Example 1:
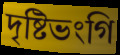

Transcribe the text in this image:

দৃষ্টিভংগি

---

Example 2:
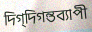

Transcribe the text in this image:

দিগ্‌দিগন্তব্যাপী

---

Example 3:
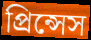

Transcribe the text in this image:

প্রিন্সেস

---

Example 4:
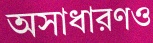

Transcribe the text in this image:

অসাধারণও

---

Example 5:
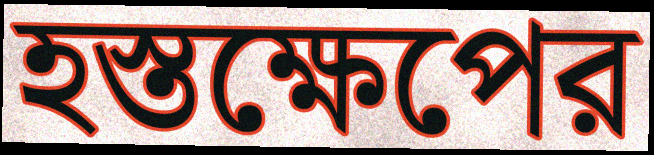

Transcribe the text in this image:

হস্তক্ষেপের